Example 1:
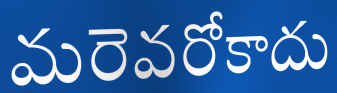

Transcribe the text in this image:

మరెవరోకాదు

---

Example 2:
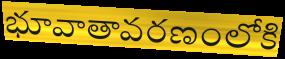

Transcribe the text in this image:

భూవాతావరణంలోకి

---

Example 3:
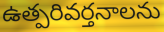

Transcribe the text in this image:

ఉత్పరివర్తనాలను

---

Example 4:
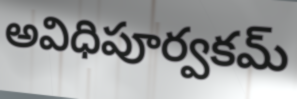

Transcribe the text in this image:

అవిధిపూర్వకమ్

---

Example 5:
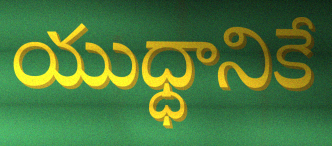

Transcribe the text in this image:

యుధ్ధానికే